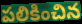
పలికించిన